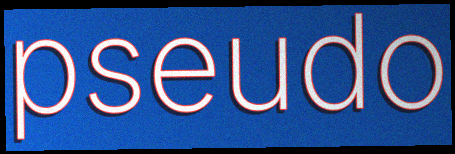
pseudo